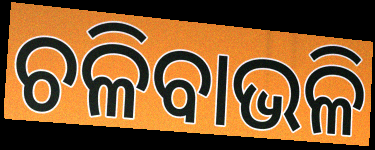
ଚଳିବାଭଳି